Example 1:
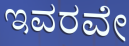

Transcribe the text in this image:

ಇವರವೇ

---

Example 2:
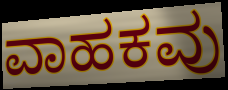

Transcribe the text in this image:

ವಾಹಕವು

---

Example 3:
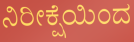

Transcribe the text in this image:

ನಿರೀಕ್ಷೆಯಿಂದ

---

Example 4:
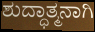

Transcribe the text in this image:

ಶುದ್ಧಾತ್ಮನಾಗಿ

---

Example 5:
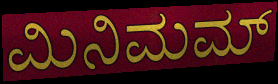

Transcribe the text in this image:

ಮಿನಿಮಮ್